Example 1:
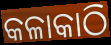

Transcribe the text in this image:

କଳାକାଠି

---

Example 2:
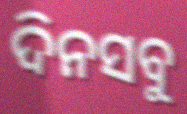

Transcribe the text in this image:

ଦିନସବୁ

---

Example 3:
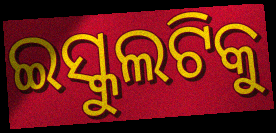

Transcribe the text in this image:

ଇସ୍କୁଲଟିକୁ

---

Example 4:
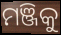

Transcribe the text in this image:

ମଞ୍ଜିକୁ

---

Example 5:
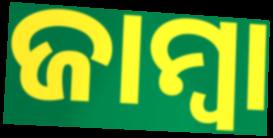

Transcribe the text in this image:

ଜାମ୍ବା